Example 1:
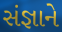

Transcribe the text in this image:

સંજ્ઞાને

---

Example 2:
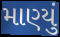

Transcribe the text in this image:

માણ્યું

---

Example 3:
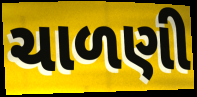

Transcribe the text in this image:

ચાળણી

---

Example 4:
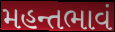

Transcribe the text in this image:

મહન્તભાવં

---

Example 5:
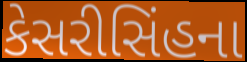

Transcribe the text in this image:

કેસરીસિંહના